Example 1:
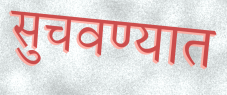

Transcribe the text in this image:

सुचवण्यात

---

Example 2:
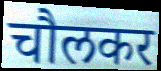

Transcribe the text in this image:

चौलकर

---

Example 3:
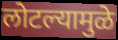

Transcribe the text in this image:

लोटल्यामुळे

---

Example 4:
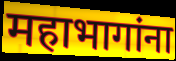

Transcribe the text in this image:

महाभागांना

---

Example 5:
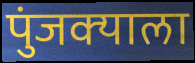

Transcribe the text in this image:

पुंजक्याला